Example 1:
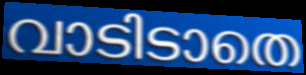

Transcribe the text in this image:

വാടിടാതെ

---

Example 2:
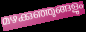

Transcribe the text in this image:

മഴക്കുഞ്ഞുങ്ങളും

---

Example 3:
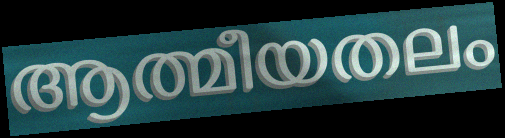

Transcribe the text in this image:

ആത്മീയതലം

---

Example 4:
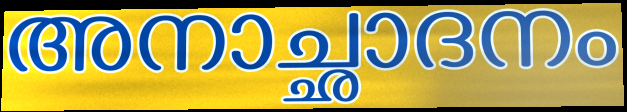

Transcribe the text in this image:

അനാച്ഛാദനം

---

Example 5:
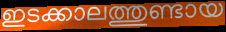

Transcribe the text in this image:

ഇടക്കാലത്തുണ്ടായ